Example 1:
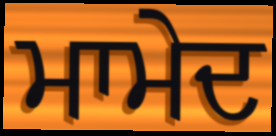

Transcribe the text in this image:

ਮਾਮੇਦ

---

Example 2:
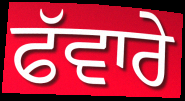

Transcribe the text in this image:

ਫੱਵਾਰੇ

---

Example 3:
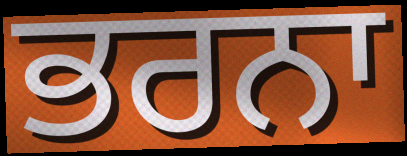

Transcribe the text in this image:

ਭਰਨਾ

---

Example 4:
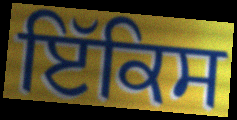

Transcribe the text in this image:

ਇੱਕਿਸ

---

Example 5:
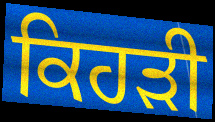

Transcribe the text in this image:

ਕਿਹੜੀ